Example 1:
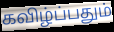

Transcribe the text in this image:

கவிழ்ப்பதும்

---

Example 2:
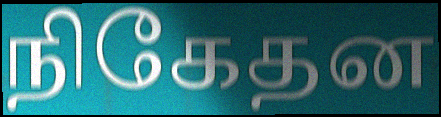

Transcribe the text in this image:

நிகேதன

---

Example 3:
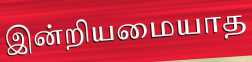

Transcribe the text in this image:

இன்றியமையாத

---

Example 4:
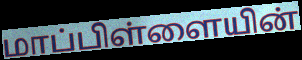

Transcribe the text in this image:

மாப்பிள்ளையின்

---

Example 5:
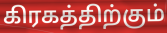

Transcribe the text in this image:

கிரகத்திற்கும்